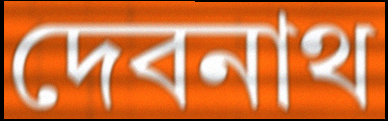
দেবনাথ